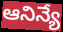
ఆనిన్యే